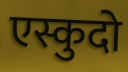
एस्कुदो